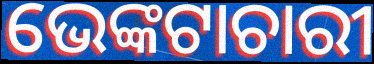
ଭେଙ୍କଟାଚାରୀ